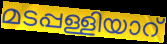
മടപ്പള്ളിയാറ്